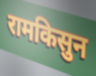
रामकिसुन